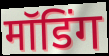
मॉडिंग